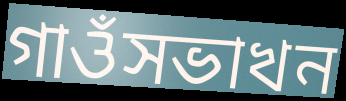
গাওঁসভাখন